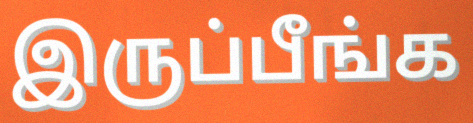
இருப்பீங்க